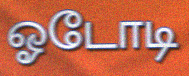
ஓடோடி